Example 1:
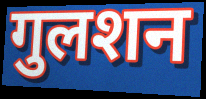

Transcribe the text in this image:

गुलशन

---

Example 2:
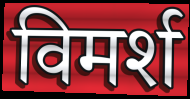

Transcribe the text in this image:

विमर्श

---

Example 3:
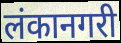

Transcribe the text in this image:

लंकानगरी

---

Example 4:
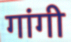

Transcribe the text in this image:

गांगी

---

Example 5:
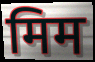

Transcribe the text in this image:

मिम